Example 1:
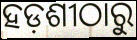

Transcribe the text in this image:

ହଡ଼ଶୀଠାରୁ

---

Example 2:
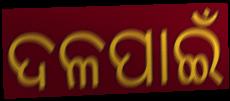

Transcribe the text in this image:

ଦଳପାଇଁ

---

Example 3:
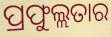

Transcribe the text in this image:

ପ୍ରଫୁଲ୍ଲତାର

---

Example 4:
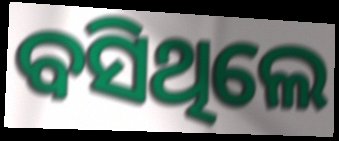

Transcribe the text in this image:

ବସିଥିଲେ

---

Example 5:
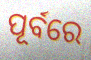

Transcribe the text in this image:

ପୂର୍ବରେ